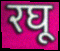
रघू